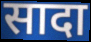
सादा